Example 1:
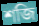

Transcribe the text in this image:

শজি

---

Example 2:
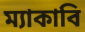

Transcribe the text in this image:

ম্যাকাবি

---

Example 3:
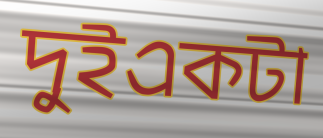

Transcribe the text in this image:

দুইএকটা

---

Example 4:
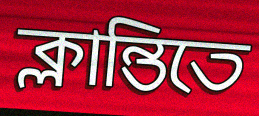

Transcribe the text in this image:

ক্লান্তিতে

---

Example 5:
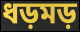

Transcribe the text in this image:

ধড়মড়